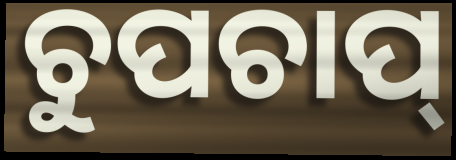
ଚୁପଚାପ୍